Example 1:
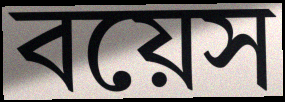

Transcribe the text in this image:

বয়েস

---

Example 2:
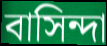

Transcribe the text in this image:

বাসিন্দা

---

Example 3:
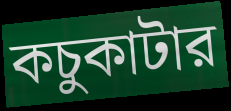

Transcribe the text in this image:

কচুকাটার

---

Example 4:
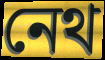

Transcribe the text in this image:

নেথ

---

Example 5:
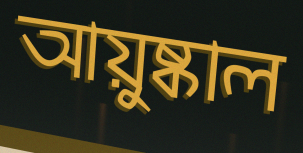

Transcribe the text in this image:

আয়ুষ্কাল